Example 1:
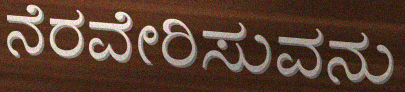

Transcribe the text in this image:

ನೆರವೇರಿಸುವನು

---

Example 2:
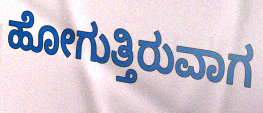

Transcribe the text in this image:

ಹೋಗುತ್ತಿರುವಾಗ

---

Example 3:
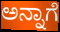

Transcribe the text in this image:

ಅನ್ನಾಗೆ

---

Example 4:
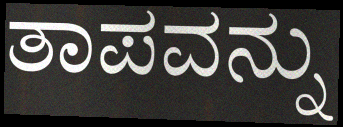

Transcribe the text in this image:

ತಾಪವನ್ನು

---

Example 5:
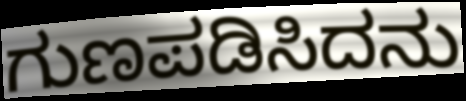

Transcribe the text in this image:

ಗುಣಪಡಿಸಿದನು